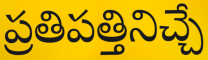
ప్రతిపత్తినిచ్చే